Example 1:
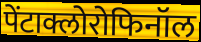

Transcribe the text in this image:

पेंटाक्लोरोफिनॉल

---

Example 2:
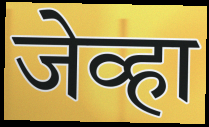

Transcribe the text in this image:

जेव्हा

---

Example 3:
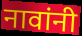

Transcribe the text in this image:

नावांनी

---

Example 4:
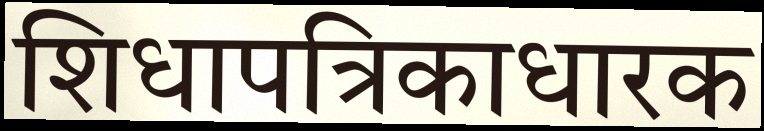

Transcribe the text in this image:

शिधापत्रिकाधारक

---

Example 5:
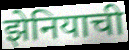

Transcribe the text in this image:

झेनियाची